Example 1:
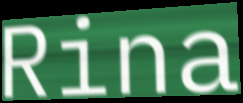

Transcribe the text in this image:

Rina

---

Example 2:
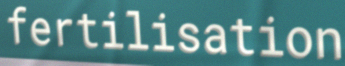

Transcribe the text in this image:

fertilisation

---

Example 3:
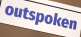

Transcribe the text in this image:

outspoken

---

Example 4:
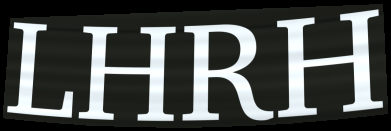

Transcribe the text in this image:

LHRH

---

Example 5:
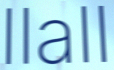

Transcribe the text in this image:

llall